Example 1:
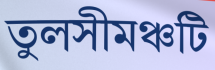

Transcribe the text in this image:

তুলসীমঞ্চটি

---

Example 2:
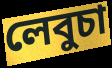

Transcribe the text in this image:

লেবুচা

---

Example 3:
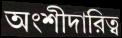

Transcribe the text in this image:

অংশীদারিত্ব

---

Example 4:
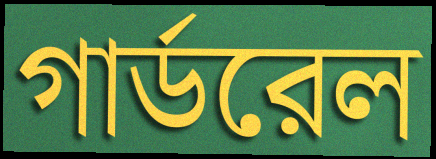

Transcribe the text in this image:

গার্ডরেল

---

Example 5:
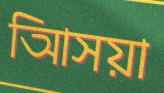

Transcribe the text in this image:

আিসয়া